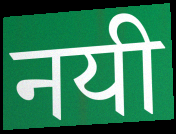
नयी